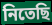
নিতেছি